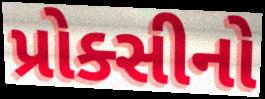
પ્રોક્સીનો